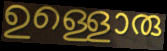
ഉള്ളൊരു